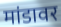
मांडावर